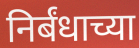
निर्बंधाच्या